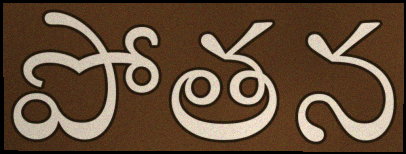
పోతన